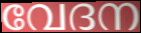
വേദന